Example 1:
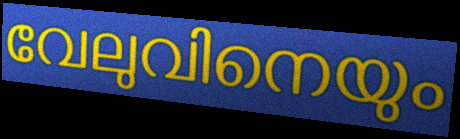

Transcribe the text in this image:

വേലുവിനെയും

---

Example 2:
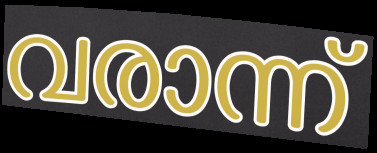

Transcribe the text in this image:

വരാന്ന്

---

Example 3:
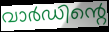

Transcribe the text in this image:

വാർഡിന്റെ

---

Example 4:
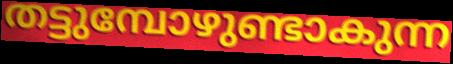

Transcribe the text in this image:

തട്ടുമ്പോഴുണ്ടാകുന്ന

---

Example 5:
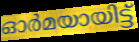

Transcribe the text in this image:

ഓർമയായിട്ട്